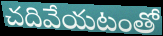
చదివేయటంతో